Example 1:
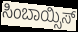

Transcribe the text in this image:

ಸಿಂಬಾಯ್ಸಿಸ್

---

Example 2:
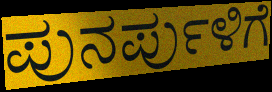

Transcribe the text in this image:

ಪುನರ್ಪುಳಿಗೆ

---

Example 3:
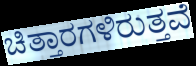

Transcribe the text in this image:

ಚಿತ್ತಾರಗಳಿರುತ್ತವೆ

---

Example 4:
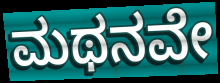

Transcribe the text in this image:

ಮಥನವೇ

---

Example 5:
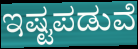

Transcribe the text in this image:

ಇಷ್ಟಪಡುವೆ